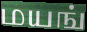
மயங்